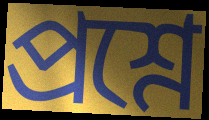
প্ৰশ্নে